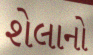
શેલાનો